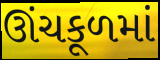
ઊંચકૂળમાં